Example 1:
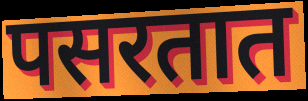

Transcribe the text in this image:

पसरतात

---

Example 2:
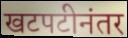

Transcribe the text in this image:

खटपटीनंतर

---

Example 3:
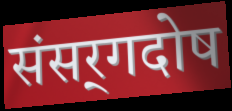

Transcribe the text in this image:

संसर्गदोष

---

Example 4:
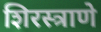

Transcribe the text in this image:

शिरस्त्राणे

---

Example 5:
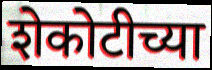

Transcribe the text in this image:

शेकोटीच्या